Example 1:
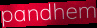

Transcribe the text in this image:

pandhem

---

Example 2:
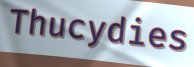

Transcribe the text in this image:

Thucydies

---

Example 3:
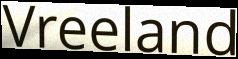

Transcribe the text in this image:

Vreeland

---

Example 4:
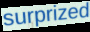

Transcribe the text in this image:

surprized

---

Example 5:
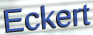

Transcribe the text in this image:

Eckert